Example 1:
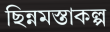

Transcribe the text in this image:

ছিন্নমস্তাকল্প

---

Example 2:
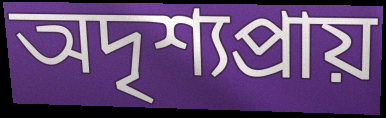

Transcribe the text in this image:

অদৃশ্যপ্ৰায়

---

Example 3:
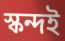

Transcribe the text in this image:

স্কন্দই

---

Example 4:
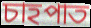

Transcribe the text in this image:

চাহপাত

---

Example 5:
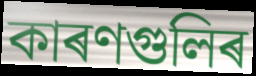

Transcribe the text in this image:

কাৰণগুলিৰ